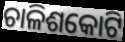
ଚାଳିଶକୋଟି